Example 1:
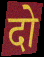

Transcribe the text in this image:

दो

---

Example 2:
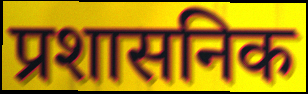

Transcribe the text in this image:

प्रशासनिक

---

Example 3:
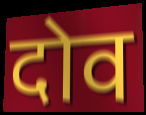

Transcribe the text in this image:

दोव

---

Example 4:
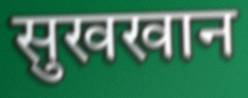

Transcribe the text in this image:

सुखखान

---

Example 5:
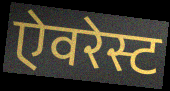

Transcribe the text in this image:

ऐवरेस्ट